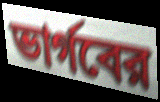
ভার্গবের